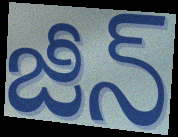
జీన్